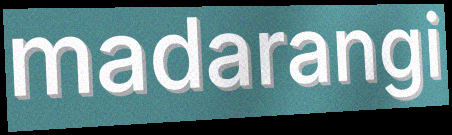
madarangi